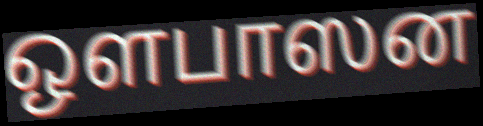
ஒளபாஸன